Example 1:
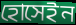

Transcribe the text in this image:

হোসেইন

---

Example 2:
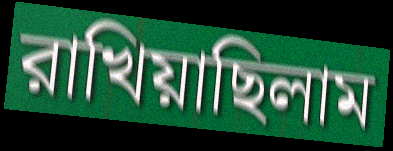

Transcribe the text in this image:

রাখিয়াছিলাম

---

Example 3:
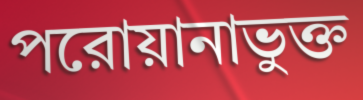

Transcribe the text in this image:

পরোয়ানাভুক্ত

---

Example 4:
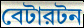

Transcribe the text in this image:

বেটারটন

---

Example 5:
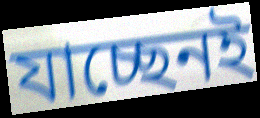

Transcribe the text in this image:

যাচ্ছেনই